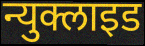
न्युक्लाइड